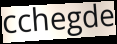
cchegde